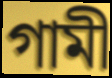
গামী